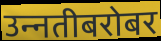
उन्नतीबरोबर